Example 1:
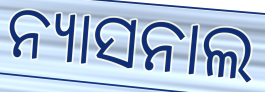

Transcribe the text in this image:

ନ୍ୟାସନାଲ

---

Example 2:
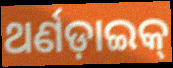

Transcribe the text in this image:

ଥର୍ଣଡ଼ାଇକ୍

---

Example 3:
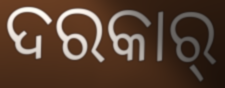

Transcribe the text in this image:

ଦରକାର୍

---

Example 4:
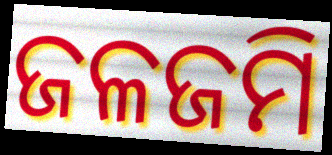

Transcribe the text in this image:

ଜଳଜମି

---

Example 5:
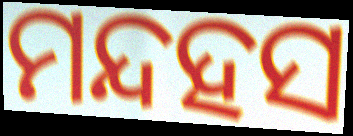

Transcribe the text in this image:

ମନ୍ଦହସ